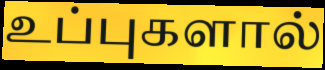
உப்புகளால்